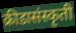
क्रीडासंस्कृती